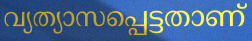
വ്യത്യാസപ്പെട്ടതാണ്